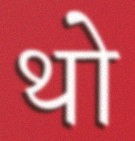
थो